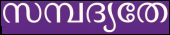
സമ്പദ്യതേ